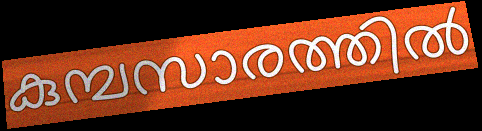
കുമ്പസാരത്തിൽ